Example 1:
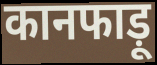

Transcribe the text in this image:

कानफाड़ू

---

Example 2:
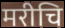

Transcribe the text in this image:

मरीचि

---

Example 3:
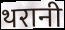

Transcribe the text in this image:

थरानी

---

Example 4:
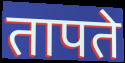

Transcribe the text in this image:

तापते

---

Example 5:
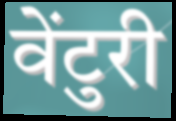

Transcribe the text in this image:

वेंटुरी